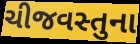
ચીજવસ્તુના